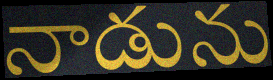
నాడును